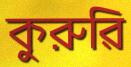
কুৰুৱি